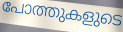
പോത്തുകളുടെ